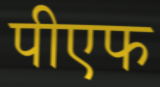
पीएफ